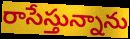
రాసేస్తున్నాను